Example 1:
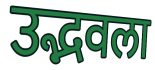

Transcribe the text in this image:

उद्भवला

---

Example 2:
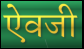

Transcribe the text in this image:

ऐवजी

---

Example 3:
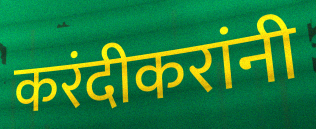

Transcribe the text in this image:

करंदीकरांनी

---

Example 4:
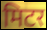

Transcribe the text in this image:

मिटर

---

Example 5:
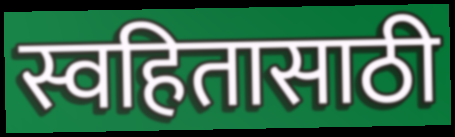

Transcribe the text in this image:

स्वहितासाठी